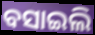
ବସାଇଲି